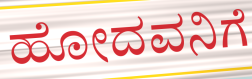
ಹೋದವನಿಗೆ